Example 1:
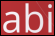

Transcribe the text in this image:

abi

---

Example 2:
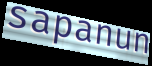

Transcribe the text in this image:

sapanun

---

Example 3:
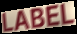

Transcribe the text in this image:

LABEL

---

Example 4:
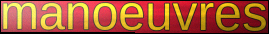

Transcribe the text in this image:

manoeuvres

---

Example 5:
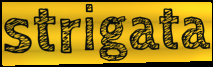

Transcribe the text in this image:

strigata